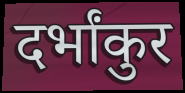
दर्भांकुर